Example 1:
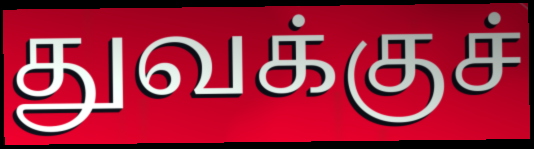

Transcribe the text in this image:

துவக்குச்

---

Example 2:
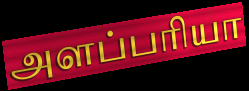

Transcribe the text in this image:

அளப்பரியா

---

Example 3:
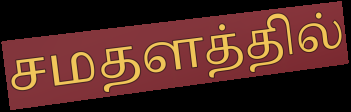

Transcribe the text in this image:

சமதளத்தில்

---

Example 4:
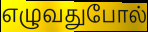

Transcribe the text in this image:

எழுவதுபோல்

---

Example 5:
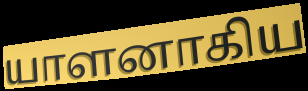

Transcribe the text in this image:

யாளனாகிய